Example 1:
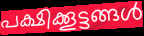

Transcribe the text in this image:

പക്ഷിക്കൂട്ടങ്ങൾ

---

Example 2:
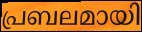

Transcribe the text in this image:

പ്രബലമായി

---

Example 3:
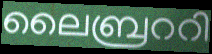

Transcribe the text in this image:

ലൈബ്രററി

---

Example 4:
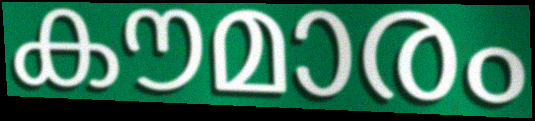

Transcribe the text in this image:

കൗമാരം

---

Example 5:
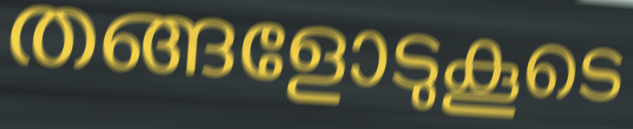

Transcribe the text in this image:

തങ്ങളോടുകൂടെ